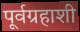
पूर्वग्रहाशी